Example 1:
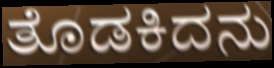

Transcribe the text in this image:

ತೊಡಕಿದನು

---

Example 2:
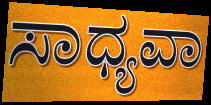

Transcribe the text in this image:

ಸಾಧ್ಯವಾ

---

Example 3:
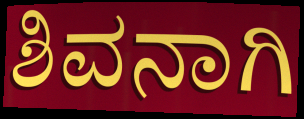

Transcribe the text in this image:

ಶಿವನಾಗಿ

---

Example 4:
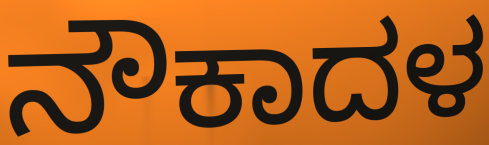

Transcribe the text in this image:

ನೌಕಾದಳ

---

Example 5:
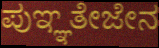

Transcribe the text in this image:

ಪುಞ್ಞತೇಜೇನ